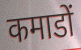
कमाडों